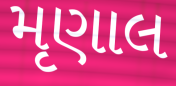
મૃણાલ